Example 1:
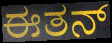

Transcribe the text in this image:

ಈತನ್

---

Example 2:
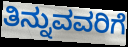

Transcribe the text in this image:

ತಿನ್ನುವವರಿಗೆ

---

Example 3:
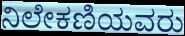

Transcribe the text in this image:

ನಿಲೇಕಣಿಯವರು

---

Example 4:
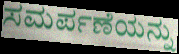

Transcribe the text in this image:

ಸಮರ್ಪಣೆಯನ್ನು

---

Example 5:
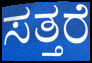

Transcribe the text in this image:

ಸತ್ತರೆ